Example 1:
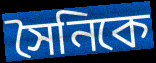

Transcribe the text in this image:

সৈনিকে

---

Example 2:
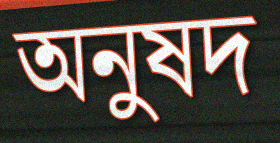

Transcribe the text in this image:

অনুষদ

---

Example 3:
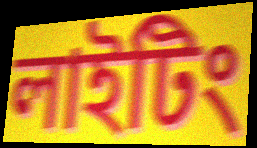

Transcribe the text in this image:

লাইটিং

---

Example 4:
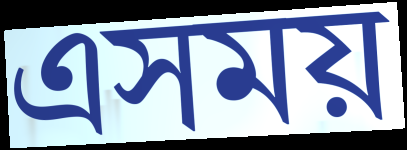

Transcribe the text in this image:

এসময়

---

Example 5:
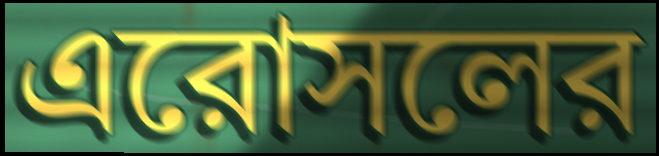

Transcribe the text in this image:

এরোসলের